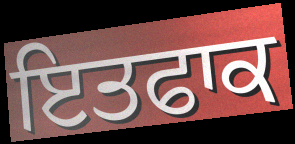
ਇਤਫਾਕ